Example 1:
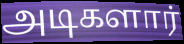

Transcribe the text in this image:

அடிகளார்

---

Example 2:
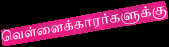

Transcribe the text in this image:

வெள்ளைக்காரர்களுக்கு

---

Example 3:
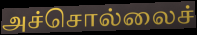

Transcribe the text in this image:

அச்சொல்லைச்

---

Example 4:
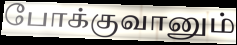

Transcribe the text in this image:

போக்குவானும்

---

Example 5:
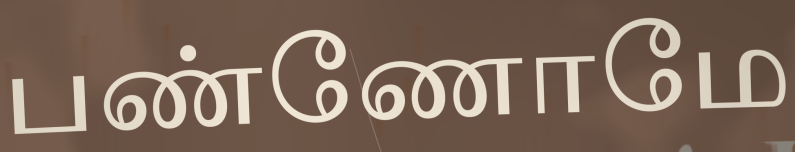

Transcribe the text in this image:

பண்ணோமே